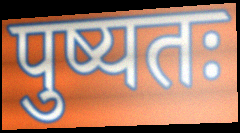
पुष्यतः